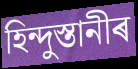
হিন্দুস্তানীৰ